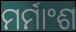
ମର୍ମାଂଶ